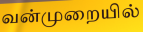
வன்முறையில்